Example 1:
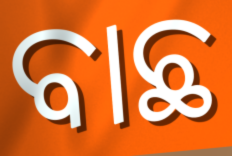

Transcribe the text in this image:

ବାଛ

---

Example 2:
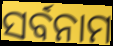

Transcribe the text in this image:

ସର୍ବନାମ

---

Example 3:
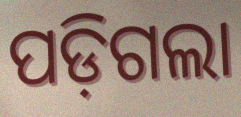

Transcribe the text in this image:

ପଡ଼ିଗଲା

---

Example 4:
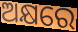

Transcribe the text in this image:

ଅକ୍ଷରେ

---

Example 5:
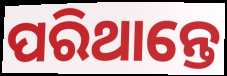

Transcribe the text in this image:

ପରିଥାନ୍ତେ